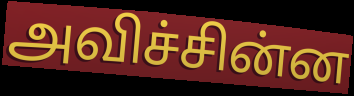
அவிச்சின்ன